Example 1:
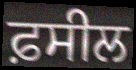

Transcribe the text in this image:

ਫ਼ਸੀਲ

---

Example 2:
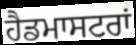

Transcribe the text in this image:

ਹੈਡਮਾਸਟਰਾਂ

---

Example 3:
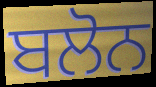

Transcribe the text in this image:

ਬਲੋਨ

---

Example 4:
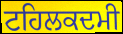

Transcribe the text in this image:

ਟਹਿਲਕਦਮੀ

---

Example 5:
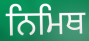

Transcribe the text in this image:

ਨਿਮਿਥ